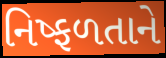
નિષ્ફળતાને